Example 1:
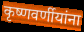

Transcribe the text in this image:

कृष्णवर्णीयांना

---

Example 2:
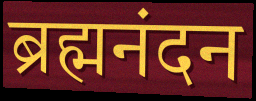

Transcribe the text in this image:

ब्रह्मनंदन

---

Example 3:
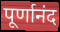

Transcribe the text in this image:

पूर्णानंद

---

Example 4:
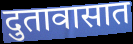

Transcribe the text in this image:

दुतावासात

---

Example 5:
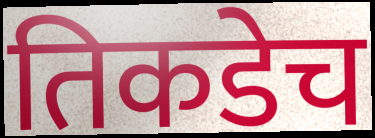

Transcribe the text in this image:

तिकडेच